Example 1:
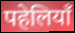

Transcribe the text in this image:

पहेलियाँ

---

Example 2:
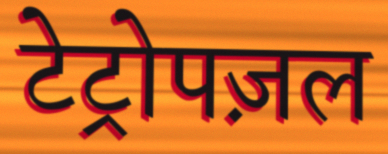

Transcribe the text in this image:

टेट्रोपज़ल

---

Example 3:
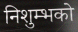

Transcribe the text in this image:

निशुम्भको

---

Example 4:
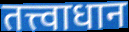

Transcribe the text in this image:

तत्त्वाधान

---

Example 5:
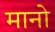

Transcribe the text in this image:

मानो